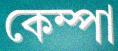
কেম্পা